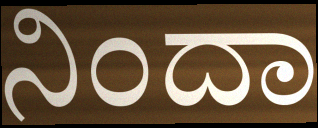
ನಿಂದಾ